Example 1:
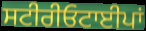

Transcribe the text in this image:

ਸਟੀਰੀਓਟਾਈਪਾਂ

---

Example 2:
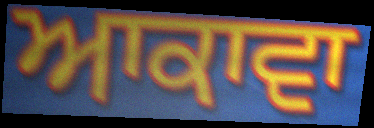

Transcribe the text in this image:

ਆਕਾਵਾ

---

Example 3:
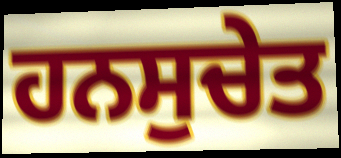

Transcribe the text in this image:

ਹਨਸੁਚੇਤ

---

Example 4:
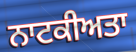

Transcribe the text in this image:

ਨਾਟਕੀਅਤਾ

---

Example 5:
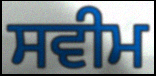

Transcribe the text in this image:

ਸਵੀਮ